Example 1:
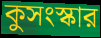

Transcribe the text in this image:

কুসংস্কার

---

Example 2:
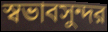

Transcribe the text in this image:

স্বভাবসুন্দর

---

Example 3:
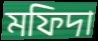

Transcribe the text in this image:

মফিদা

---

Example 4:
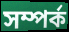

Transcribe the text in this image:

সম্পর্ক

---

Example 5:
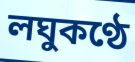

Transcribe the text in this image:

লঘুকণ্ঠে